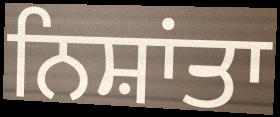
ਨਿਸ਼ਾਂਤਾ